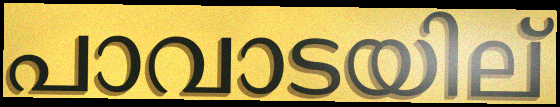
പാവാടയില്